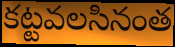
కట్టవలసినంత